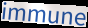
immune